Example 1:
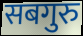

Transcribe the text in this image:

सबगुरु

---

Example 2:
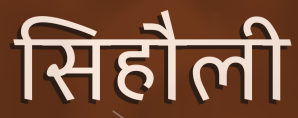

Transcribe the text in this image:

सिहौली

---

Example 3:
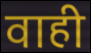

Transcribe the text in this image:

वाही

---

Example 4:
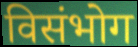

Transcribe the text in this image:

विसंभोग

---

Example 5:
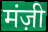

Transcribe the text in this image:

मंज़ी